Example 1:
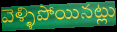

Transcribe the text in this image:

వెళ్ళిపోయినట్లు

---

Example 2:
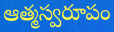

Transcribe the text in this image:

ఆత్మస్వరూపం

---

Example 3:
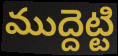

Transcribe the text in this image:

ముద్దెట్టి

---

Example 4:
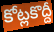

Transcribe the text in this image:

కోట్లకొద్దీ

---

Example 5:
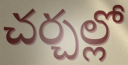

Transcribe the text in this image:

చర్చల్లో